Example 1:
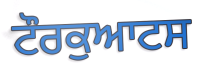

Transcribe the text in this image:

ਟੌਰਕੁਆਟਸ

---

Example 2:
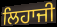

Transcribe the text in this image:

ਲਿਹਾਜੀ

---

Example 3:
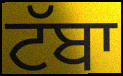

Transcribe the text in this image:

ਟੱਬਾ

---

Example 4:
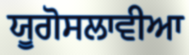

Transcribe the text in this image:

ਯੂਗੋਸਲਾਵੀਆ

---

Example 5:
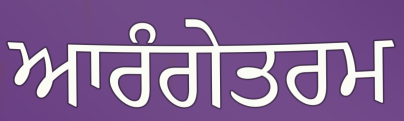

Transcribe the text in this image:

ਆਰੰਗੇਤਰਮ